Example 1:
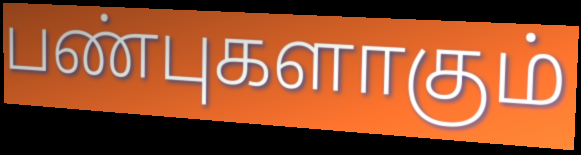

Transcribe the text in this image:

பண்புகளாகும்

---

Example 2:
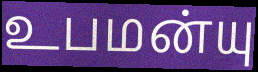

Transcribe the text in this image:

உபமன்யு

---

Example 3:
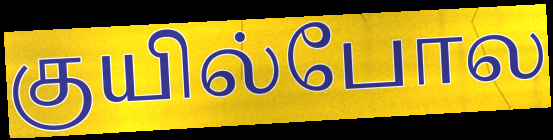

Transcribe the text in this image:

குயில்போல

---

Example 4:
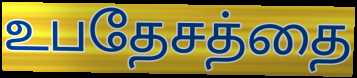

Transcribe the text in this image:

உபதேசத்தை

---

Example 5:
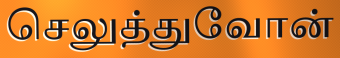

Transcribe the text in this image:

செலுத்துவோன்